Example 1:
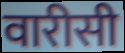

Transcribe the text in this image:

वारीसी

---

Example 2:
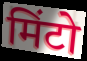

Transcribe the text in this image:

मिंटो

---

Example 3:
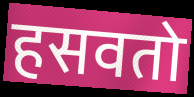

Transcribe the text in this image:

हसवतो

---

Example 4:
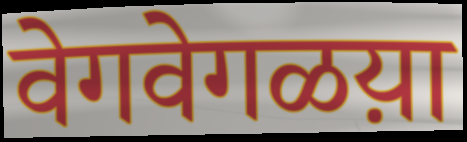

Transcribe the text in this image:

वेगवेगळय़ा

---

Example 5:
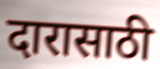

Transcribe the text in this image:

दारासाठी